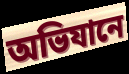
অভিযানে